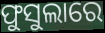
ଫୁସୁଲାରେ